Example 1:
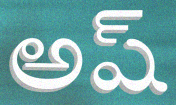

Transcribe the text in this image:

అష్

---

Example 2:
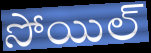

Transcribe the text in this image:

సోయిల్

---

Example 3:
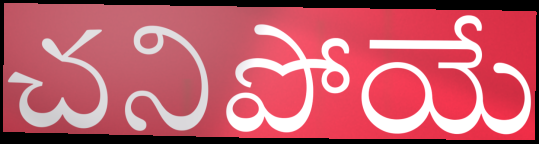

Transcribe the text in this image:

చనిపోయే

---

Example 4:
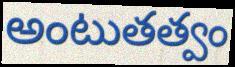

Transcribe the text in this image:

అంటుతత్వం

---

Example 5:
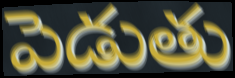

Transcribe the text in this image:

పెడుతు